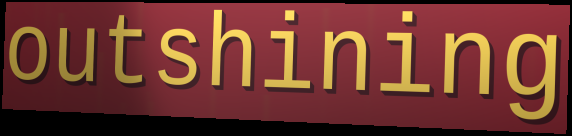
outshining